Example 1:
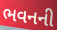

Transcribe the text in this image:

ભવનની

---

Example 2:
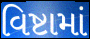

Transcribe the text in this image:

વિષ્ટામાં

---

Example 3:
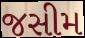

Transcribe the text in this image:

જસીમ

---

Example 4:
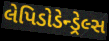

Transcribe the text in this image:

લેપિડોડેન્ડ્રેલ્સ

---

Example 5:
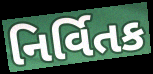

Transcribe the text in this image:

નિર્વિતક